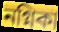
নগ্নিকা